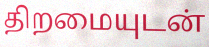
திறமையுடன்